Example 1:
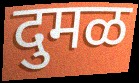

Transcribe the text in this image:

दुमळ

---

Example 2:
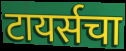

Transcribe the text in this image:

टायर्सचा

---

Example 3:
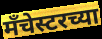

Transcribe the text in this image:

मँचेस्टरच्या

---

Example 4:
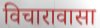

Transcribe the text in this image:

विचारावासा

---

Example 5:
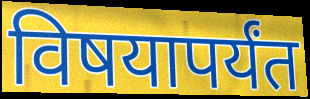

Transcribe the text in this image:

विषयापर्यंत